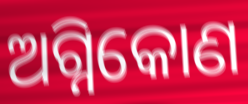
ଅଗ୍ନିକୋଣ